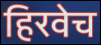
हिरवेच